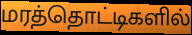
மரத்தொட்டிகளில்